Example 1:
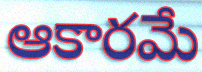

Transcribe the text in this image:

ఆకారమే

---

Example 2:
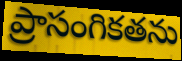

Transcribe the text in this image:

ప్రాసంగికతను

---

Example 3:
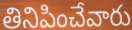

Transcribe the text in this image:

తినిపించేవారు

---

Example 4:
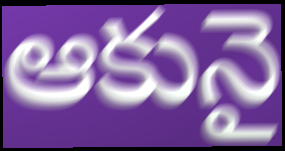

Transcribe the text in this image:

ఆకునై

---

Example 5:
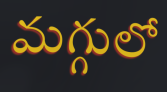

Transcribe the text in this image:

మగ్గులో